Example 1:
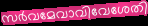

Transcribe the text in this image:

സർവമേവാവിവേശേതി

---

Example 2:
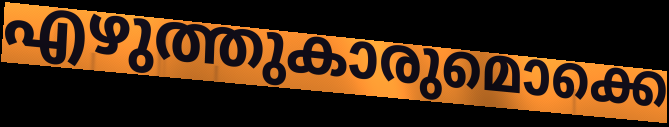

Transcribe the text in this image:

എഴുത്തുകാരുമൊക്കെ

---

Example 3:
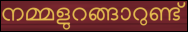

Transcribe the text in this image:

നമ്മളുറങ്ങാറുണ്ട്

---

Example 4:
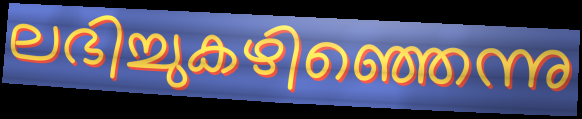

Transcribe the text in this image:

ലഭിച്ചുകഴിഞ്ഞെന്നു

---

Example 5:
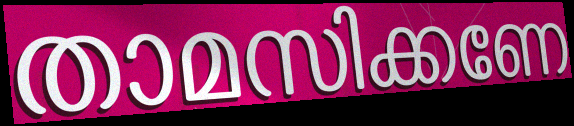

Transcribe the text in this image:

താമസിക്കണേ